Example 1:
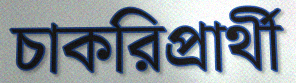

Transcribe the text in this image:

চাকরিপ্রার্থী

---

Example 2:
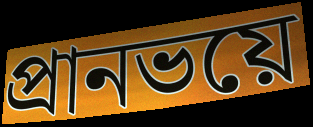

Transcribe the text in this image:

প্রানভয়ে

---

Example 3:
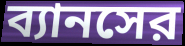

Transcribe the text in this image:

ব্যানসের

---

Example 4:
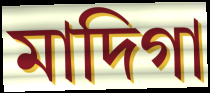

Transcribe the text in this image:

মাদিগা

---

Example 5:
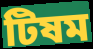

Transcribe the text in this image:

টিষম